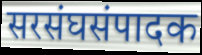
सरसंघसंपादक